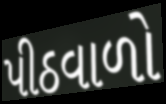
પીઠવાળો